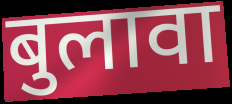
बुलावा